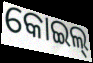
କୋଇଲ୍